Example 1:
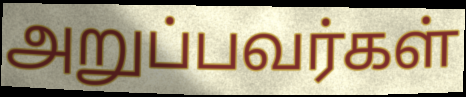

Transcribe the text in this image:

அறுப்பவர்கள்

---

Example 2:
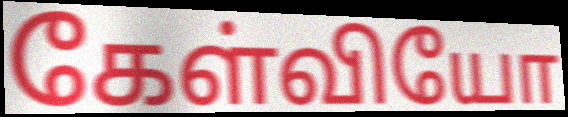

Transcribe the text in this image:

கேள்வியோ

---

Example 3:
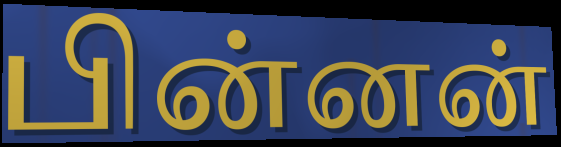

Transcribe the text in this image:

பின்னன்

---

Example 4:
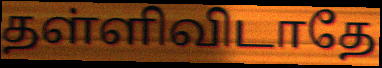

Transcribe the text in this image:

தள்ளிவிடாதே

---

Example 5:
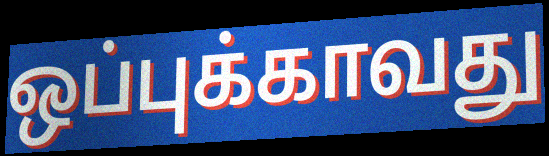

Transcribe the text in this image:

ஒப்புக்காவது